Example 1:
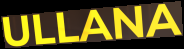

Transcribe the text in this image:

ULLANA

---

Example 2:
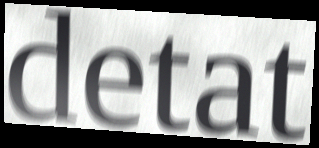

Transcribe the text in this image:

detat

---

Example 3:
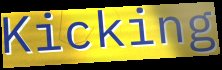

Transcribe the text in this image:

Kicking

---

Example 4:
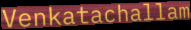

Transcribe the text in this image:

Venkatachallam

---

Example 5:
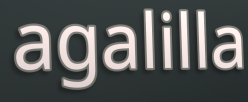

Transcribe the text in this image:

agalilla